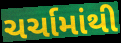
ચર્ચામાંથી